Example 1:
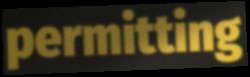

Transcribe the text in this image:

permitting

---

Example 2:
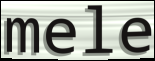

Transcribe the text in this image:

mele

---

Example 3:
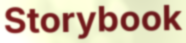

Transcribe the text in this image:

Storybook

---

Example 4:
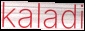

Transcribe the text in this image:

kaladi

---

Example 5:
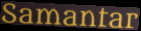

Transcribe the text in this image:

Samantar